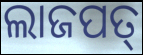
ଲାଜପତ୍